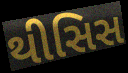
થીસિસ